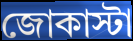
জোকাস্টা